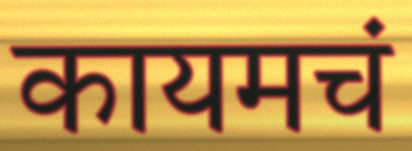
कायमचं